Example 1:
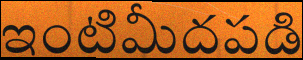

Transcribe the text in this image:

ఇంటిమీదపడి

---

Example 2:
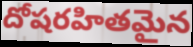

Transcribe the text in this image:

దోషరహితమైన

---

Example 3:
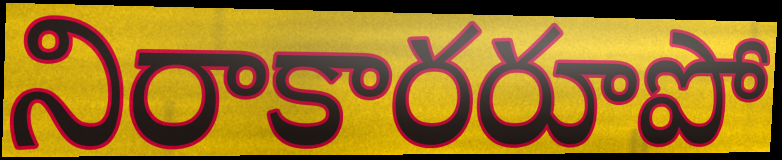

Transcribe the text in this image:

నిరాకారరూపో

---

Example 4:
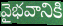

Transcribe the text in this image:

వైభవానికి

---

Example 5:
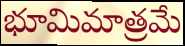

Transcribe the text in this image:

భూమిమాత్రమే